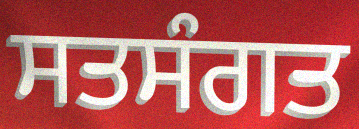
ਸਤਸੰਗਤ